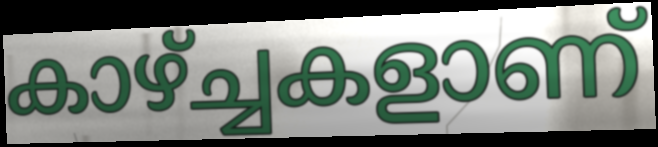
കാഴ്ച്ചകളാണ്